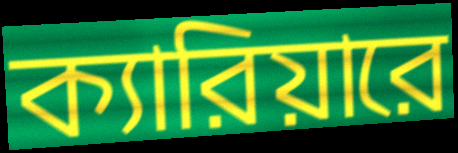
ক্যারিয়ারে